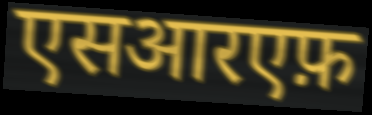
एसआरएफ़